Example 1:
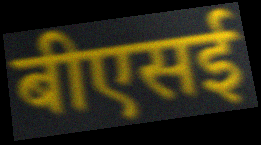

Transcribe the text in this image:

बीएसई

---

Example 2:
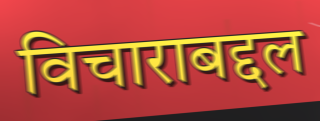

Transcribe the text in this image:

विचाराबद्दल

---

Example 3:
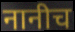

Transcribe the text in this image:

नानीच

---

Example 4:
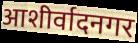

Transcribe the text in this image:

आशीर्वादनगर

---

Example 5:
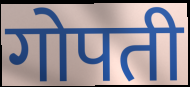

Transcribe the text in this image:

गोपती